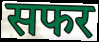
सफर